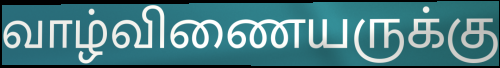
வாழ்விணையருக்கு